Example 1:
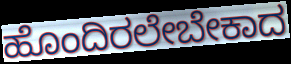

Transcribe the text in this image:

ಹೊಂದಿರಲೇಬೇಕಾದ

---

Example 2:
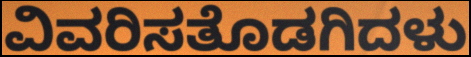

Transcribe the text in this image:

ವಿವರಿಸತೊಡಗಿದಳು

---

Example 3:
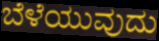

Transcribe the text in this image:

ಬೆಳೆಯುವುದು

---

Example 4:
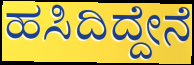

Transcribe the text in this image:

ಹಸಿದಿದ್ದೇನೆ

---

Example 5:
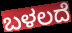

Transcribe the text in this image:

ಬಳಲದೆ